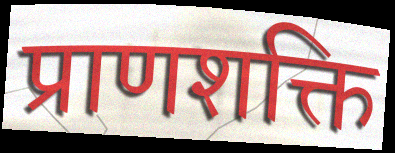
प्राणशक्ति